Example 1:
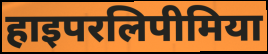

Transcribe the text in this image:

हाइपरलिपीमिया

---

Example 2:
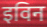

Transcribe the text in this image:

इविन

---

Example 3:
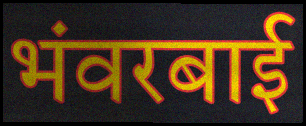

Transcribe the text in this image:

भंवरबाई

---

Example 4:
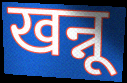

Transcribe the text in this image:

खन्नू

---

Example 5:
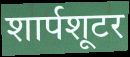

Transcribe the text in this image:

शार्पशूटर